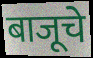
बाजूचे